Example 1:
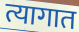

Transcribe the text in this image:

त्यागात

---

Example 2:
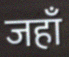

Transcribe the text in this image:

जहाँ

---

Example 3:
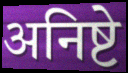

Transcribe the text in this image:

अनिष्टे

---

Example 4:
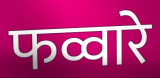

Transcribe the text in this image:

फव्वारे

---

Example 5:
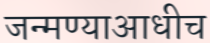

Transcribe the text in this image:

जन्मण्याआधीच